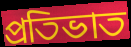
প্ৰতিভাত